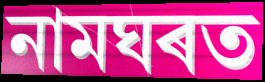
নামঘৰত